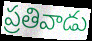
ప్రతివాడు